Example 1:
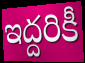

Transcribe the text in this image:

ఇద్దరికీ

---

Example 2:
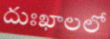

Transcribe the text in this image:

దుఃఖాలలో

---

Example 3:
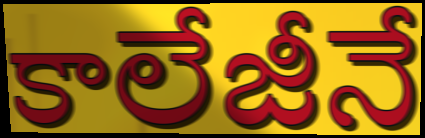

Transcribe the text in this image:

కాలేజీనే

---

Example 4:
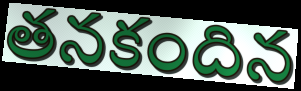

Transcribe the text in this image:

తనకందిన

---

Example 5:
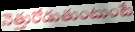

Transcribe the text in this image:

నెత్తురోడుతుంటుంటే